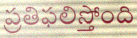
ప్రతిఫలిస్తోంది